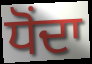
ਧੋਂਦਾ